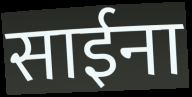
साईना